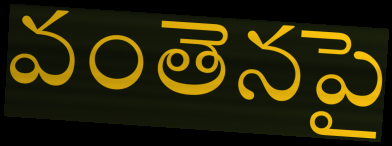
వంతెనపై